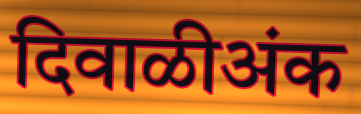
दिवाळीअंक